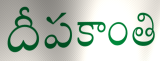
దీపకాంతి